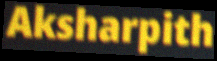
Aksharpith